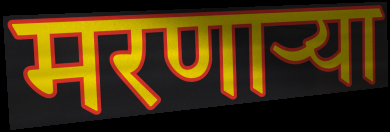
मरणार्‍या